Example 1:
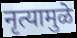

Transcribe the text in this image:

नृत्यामुळे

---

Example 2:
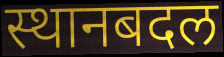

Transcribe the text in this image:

स्थानबदल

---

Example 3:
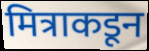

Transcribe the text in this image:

मित्राकडून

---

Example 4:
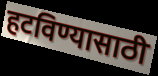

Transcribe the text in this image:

हटविण्यासाठी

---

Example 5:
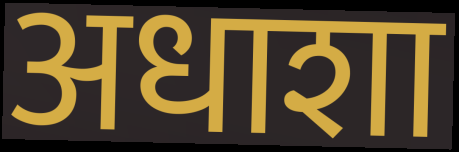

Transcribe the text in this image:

अधाशा